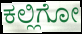
ಕಲ್ಲಿಗೋ